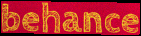
behance